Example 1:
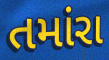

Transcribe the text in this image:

તમાંરા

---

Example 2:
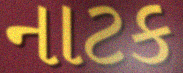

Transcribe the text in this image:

નાટક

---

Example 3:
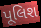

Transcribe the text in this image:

પૂલિશ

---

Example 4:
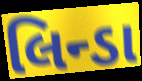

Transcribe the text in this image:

લિન્ડા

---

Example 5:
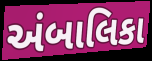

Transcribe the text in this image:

અંબાલિકા